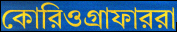
কোরিওগ্রাফাররা